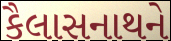
કૈલાસનાથને